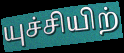
யுச்சியிற்